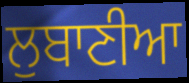
ਲੁਬਾਣੀਆ